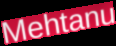
Mehtanu